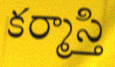
కర్మాస్తి